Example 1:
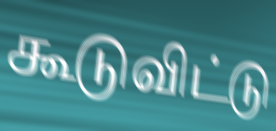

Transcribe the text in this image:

கூடுவிட்டு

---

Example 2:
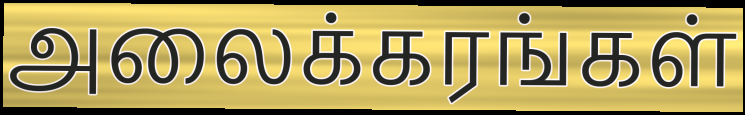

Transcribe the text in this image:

அலைக்கரங்கள்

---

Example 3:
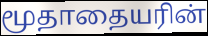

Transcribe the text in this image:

மூதாதையரின்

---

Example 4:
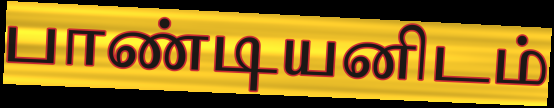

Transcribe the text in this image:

பாண்டியனிடம்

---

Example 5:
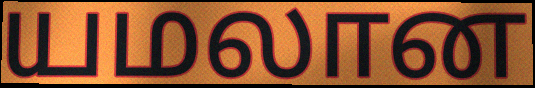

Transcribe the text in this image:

யமலான